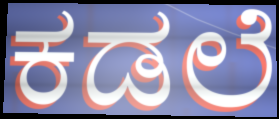
ಕಡಲೆ